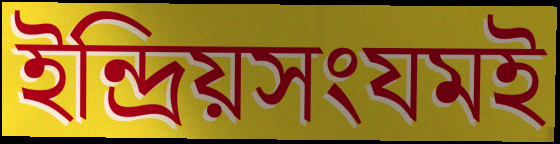
ইন্দ্রিয়সংযমই